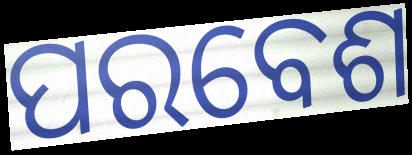
ପରବେଶ